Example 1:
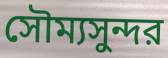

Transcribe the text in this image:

সৌম্যসুন্দর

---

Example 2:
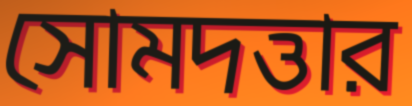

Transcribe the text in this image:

সোমদত্তার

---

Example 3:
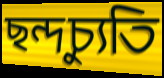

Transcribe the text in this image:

ছন্দচ্যুতি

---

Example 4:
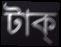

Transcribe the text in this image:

টাক্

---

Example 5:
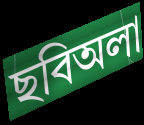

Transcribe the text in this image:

ছবিঅলা